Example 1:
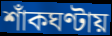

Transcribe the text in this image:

শাঁকঘণ্টায়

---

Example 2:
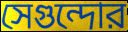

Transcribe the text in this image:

সেগুন্দোর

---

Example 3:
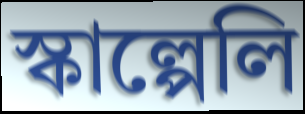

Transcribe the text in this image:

স্কাল্পেলি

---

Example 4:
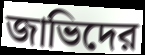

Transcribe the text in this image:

জাভিদের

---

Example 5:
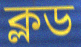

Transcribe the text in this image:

ক্লড